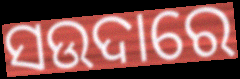
ସଉଦାରେ